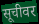
सूचीवर